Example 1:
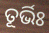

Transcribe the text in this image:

ତୂର୍ଭିଃ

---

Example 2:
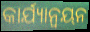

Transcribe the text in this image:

କାର୍ଯ୍ୟାନ୍ବୟନ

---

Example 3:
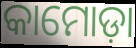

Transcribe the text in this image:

କାମୋଡ଼ା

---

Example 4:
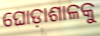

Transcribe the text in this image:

ଘୋଡ଼ାଶାଳକୁ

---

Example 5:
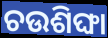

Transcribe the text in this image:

ଚଉଶିଙ୍ଘା